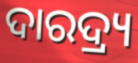
ଦାରଦ୍ର୍ୟ